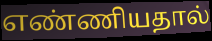
எண்ணியதால்